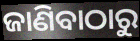
ଜାଣିବାଠାରୁ